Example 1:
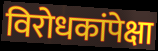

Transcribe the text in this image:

विरोधकांपेक्षा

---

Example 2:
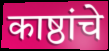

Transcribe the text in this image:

काष्ठांचे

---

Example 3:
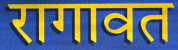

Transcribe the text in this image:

रागावत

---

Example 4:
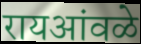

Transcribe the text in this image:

रायआंवळे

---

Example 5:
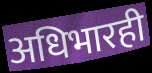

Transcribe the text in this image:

अधिभारही